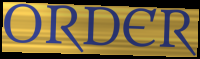
ORDER